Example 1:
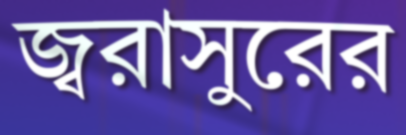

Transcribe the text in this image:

জ্বরাসুরের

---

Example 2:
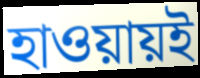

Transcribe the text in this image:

হাওয়ায়ই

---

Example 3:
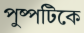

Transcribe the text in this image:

পুষ্পটিকে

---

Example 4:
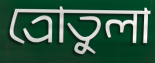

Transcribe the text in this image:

ত্রোতুলা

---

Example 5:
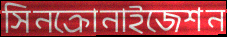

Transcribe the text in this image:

সিনক্রোনাইজেশন